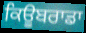
ਕਿਊਬਰਾਡਾ